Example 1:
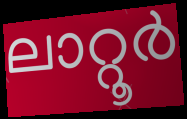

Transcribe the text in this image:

ലാറ്റൂർ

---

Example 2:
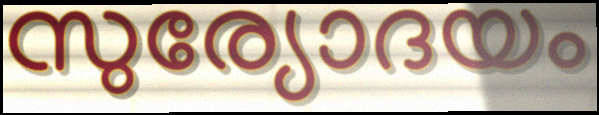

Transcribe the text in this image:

സുര്യോദയം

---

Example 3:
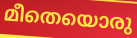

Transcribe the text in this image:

മീതെയൊരു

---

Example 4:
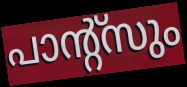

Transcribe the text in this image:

പാന്റ്സും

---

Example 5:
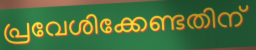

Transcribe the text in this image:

പ്രവേശിക്കേണ്ടതിന്